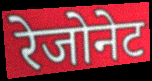
रेजोनेट